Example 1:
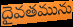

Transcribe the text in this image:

దైవతమును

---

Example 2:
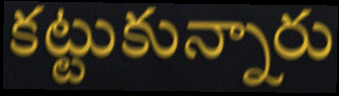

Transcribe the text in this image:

కట్టుకున్నారు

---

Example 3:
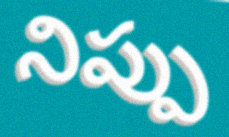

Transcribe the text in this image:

నిప్పు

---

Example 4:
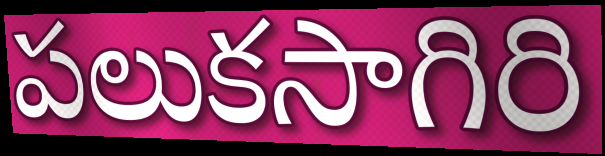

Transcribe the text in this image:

పలుకసాగిరి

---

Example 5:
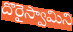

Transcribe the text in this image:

దొరైస్వామిని